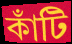
কাঁটি